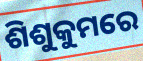
ଶିଶୁକୁମରେ